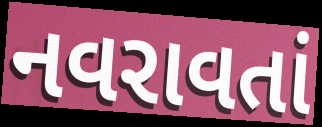
નવરાવતાં